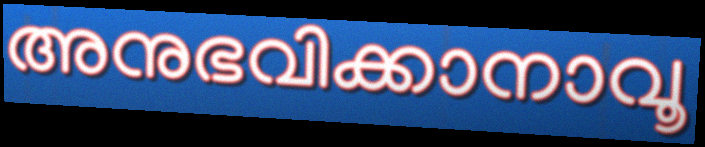
അനുഭവിക്കാനാവൂ